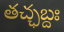
తచ్ఛబ్దః